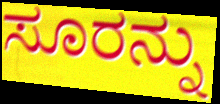
ಸೂರನ್ನು